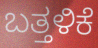
ಬತ್ತಳಿಕೆ